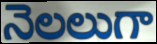
నెలలుగా